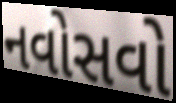
નવોસવો